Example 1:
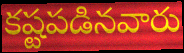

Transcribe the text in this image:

కష్టపడినవారు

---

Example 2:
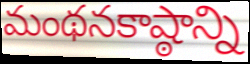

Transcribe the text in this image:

మంథనకాష్ఠాన్ని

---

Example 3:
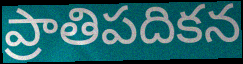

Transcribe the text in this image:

ప్రాతిపదికన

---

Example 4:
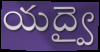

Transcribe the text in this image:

యద్వై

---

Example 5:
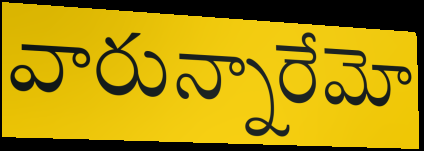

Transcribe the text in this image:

వారున్నారేమో